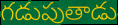
గడుపుతాడు